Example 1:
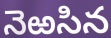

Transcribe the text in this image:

నెఱసిన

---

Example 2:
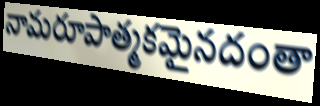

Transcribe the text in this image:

నామరూపాత్మకమైనదంతా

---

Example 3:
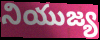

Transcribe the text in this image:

నియుజ్య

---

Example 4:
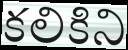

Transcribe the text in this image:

కలికిని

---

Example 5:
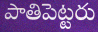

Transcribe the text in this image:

పాతిపెట్టరు